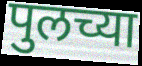
पुलच्या